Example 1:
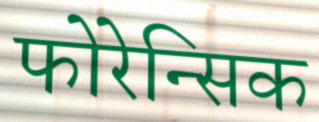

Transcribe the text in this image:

फोरेन्सिक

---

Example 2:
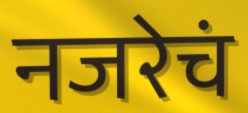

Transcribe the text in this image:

नजरेचं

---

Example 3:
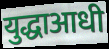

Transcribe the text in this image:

युद्धाआधी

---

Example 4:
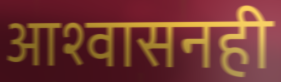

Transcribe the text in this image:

आश्वासनही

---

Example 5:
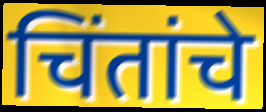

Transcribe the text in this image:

चिंतांचे